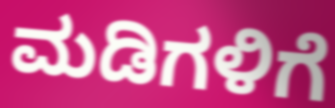
ಮಡಿಗಳಿಗೆ